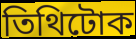
তিথিটোক